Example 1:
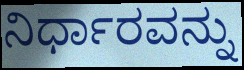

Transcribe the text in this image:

ನಿರ್ಧಾರವನ್ನು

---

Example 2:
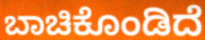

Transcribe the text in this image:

ಬಾಚಿಕೊಂಡಿದೆ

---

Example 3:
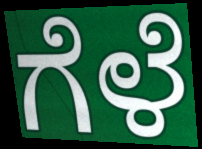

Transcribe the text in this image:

ಗೆಳೆ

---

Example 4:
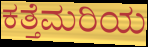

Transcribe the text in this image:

ಕತ್ತೆಮರಿಯ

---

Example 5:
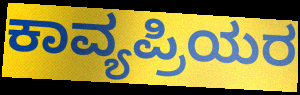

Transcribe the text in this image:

ಕಾವ್ಯಪ್ರಿಯರ